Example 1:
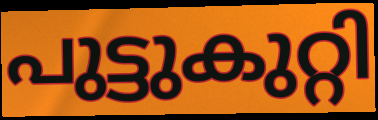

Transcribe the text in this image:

പുട്ടുകുറ്റി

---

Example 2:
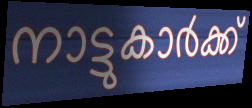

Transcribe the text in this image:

നാട്ടുകാർക്ക്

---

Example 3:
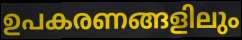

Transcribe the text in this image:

ഉപകരണങ്ങളിലും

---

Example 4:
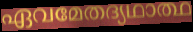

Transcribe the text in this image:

ഏവമേതദ്യഥാത്ഥ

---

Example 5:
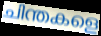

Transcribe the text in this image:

ചിന്തകളെ